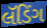
લૅડિંગ